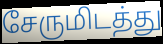
சேருமிடத்து